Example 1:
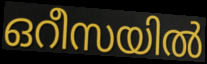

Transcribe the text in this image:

ഒറീസയിൽ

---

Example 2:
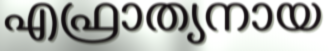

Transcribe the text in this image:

എഫ്രാത്യനായ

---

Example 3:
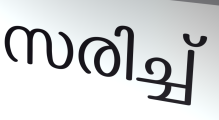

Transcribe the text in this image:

സരിച്ച്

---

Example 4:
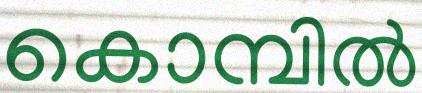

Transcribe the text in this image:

കൊമ്പിൽ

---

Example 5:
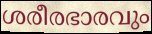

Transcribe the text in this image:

ശരീരഭാരവും